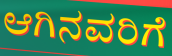
ಆಗಿನವರಿಗೆ